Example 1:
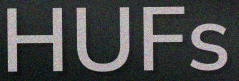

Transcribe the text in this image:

HUFs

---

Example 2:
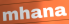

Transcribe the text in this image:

mhana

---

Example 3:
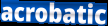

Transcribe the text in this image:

acrobatic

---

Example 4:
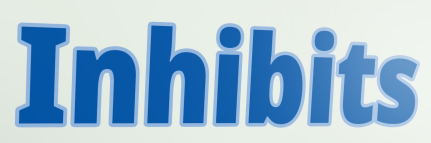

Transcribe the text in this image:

Inhibits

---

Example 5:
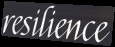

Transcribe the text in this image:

resilience